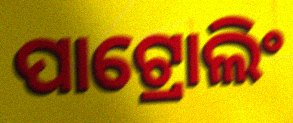
ପାଟ୍ରୋଲିଂ